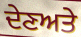
ਦੇਣਅਤੇ